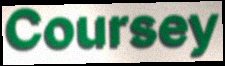
Coursey